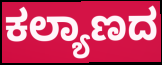
ಕಲ್ಯಾಣದ